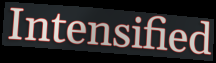
Intensified